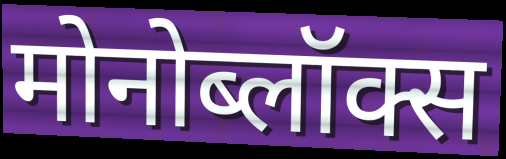
मोनोब्लॉक्स